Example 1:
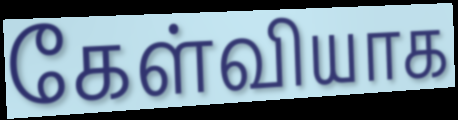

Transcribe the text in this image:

கேள்வியாக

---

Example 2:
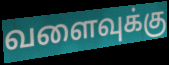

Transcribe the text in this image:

வளைவுக்கு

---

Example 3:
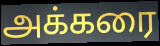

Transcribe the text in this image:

அக்கரை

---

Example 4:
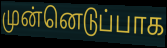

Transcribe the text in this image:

முன்னெடுப்பாக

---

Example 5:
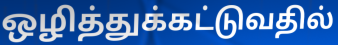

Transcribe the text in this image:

ஒழித்துக்கட்டுவதில்